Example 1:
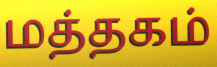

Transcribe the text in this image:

மத்தகம்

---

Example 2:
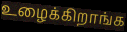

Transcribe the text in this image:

உழைக்கிறாங்க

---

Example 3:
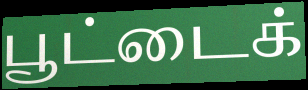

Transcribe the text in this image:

பூட்டைக்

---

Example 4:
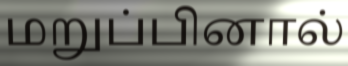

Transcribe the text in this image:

மறுப்பினால்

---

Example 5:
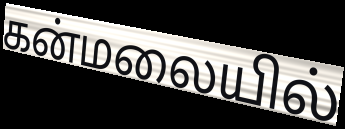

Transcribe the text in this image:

கன்மலையில்